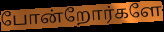
போன்றோர்களே